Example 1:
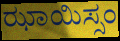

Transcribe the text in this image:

ಝಾಯಿಸ್ಸಂ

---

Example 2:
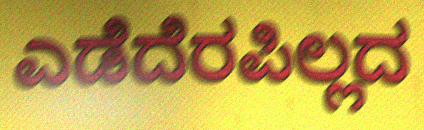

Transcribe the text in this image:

ಎಡೆದೆರಪಿಲ್ಲದ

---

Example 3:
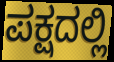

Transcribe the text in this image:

ಪಕ್ಷದಲ್ಲಿ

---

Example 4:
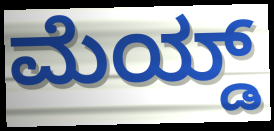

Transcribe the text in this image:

ಮೆಯ್ಡ್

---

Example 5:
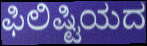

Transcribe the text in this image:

ಫಿಲಿಷ್ಟಿಯದ